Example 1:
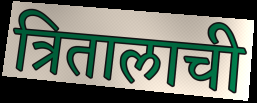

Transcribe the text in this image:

त्रितालाची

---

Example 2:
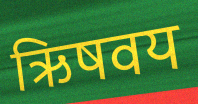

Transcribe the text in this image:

ऋिषवय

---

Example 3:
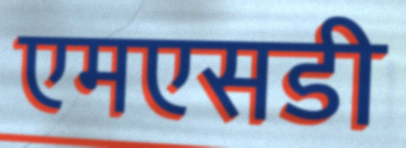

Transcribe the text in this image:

एमएसडी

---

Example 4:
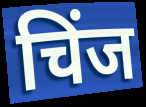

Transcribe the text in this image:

चिंज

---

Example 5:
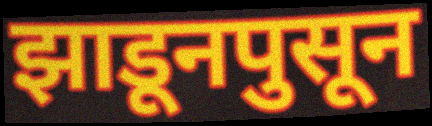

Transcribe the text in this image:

झाडूनपुसून